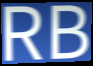
RB